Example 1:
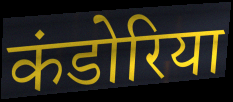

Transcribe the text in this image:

कंडोरिया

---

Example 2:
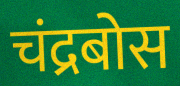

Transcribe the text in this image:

चंद्रबोस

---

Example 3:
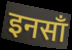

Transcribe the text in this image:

इनसाँ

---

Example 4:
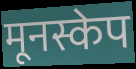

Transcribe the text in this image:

मूनस्केप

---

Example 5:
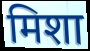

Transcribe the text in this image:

मिशा